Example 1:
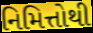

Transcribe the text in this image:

નિમિત્તોથી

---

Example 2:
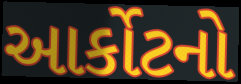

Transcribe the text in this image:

આર્કોટનો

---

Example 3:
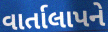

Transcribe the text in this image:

વાર્તાલાપને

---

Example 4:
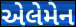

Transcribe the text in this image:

એલેમેન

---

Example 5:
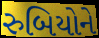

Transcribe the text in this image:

રુબિયોને